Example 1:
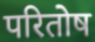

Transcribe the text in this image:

परितोष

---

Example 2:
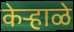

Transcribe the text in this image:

केऱ्हाळे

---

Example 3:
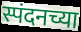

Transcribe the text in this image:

स्पंदनच्या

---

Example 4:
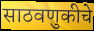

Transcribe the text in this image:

साठवणुकीचे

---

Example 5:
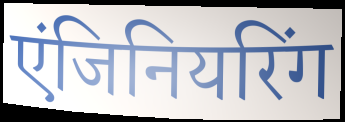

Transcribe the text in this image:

एंजिनियरिंग